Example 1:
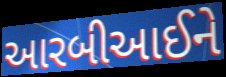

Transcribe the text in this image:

આરબીઆઈને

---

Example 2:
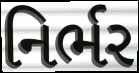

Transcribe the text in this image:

નિર્ભર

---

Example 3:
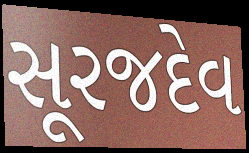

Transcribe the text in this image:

સૂરજદેવ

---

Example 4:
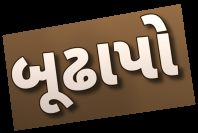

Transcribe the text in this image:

બૂઢાપો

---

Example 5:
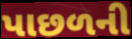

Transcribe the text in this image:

પાછળની